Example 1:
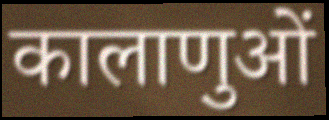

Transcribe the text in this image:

कालाणुओं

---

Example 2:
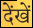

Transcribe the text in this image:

देंखें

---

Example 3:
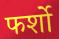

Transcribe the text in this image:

फर्शो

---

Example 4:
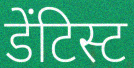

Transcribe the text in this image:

डेंटिस्ट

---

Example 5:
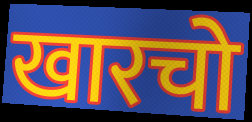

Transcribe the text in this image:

खारचो